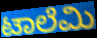
ಟಾಲೆಮಿ